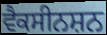
ਵੈਕਸੀਨਸ਼ਨ